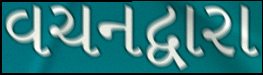
વચનદ્વારા